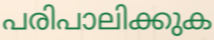
പരിപാലിക്കുക